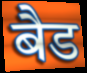
बैड